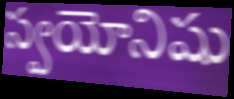
స్వయోనిషు